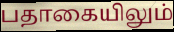
பதாகையிலும்